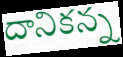
దానికన్న